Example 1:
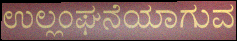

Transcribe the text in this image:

ಉಲ್ಲಂಘನೆಯಾಗುವ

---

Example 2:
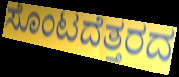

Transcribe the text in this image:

ಸೊಂಟದೆತ್ತರದ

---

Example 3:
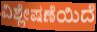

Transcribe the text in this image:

ವಿಶ್ಲೇಷಣೆಯಿದೆ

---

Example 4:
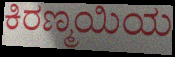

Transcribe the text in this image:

ಕಿರಣ್ಮಯಿಯ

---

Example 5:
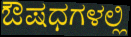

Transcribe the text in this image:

ಔಷಧಗಳಲ್ಲಿ